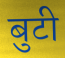
बुटी